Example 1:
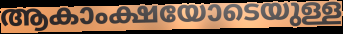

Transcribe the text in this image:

ആകാംക്ഷയോടെയുള്ള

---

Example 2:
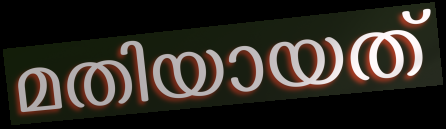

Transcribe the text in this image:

മതിയായത്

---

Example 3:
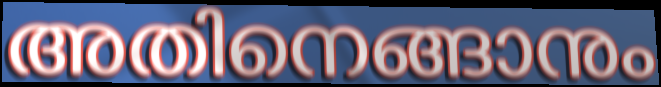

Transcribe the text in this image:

അതിനെങ്ങാനും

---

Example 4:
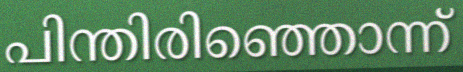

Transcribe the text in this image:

പിന്തിരിഞ്ഞൊന്ന്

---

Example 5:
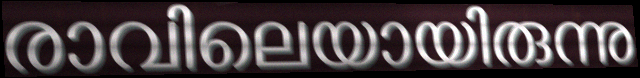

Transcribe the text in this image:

രാവിലെയായിരുന്നു